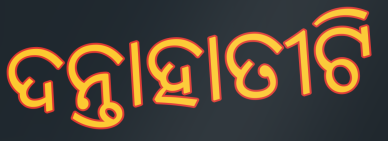
ଦନ୍ତାହାତୀଟି